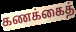
கணக்கைத்